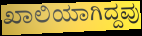
ಖಾಲಿಯಾಗಿದ್ದವು